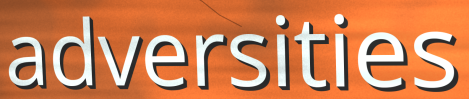
adversities